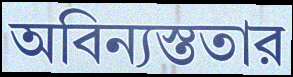
অবিন্যস্ততার